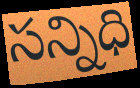
సన్నిధి